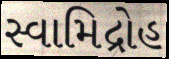
સ્વામિદ્રોહ